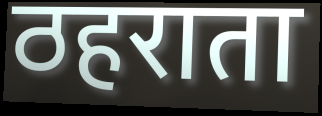
ठहराता